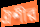
ঐশীর